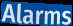
Alarms